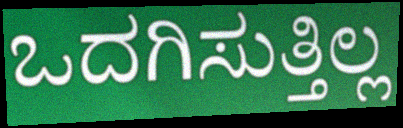
ಒದಗಿಸುತ್ತಿಲ್ಲ